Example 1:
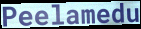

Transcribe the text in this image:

Peelamedu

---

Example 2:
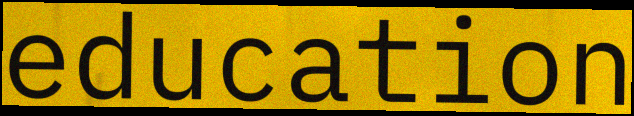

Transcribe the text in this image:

education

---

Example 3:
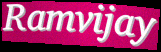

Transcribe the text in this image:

Ramvijay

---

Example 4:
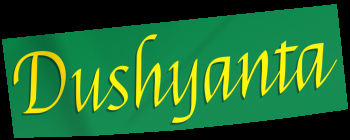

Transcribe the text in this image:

Dushyanta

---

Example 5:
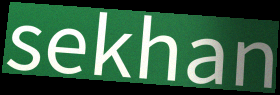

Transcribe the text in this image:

sekhan